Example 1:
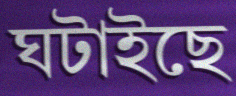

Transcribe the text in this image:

ঘটাইছে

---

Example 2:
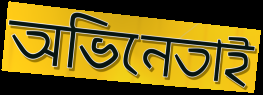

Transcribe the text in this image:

অভিনেতাই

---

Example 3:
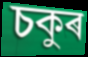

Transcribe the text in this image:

চকুৰ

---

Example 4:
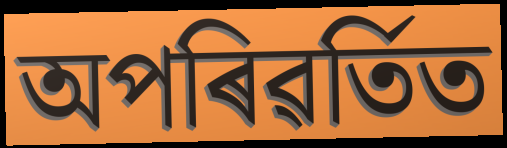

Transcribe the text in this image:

অপৰিৱৰ্তিত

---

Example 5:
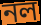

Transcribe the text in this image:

নল